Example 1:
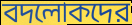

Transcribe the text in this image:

বদলোকদের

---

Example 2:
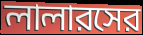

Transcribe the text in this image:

লালারসের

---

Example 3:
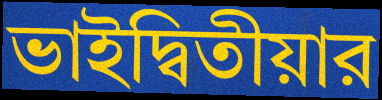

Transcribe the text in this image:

ভাইদ্বিতীয়ার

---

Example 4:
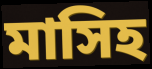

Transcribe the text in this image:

মাসিহ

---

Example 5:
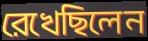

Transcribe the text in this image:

রেখেছিলেন